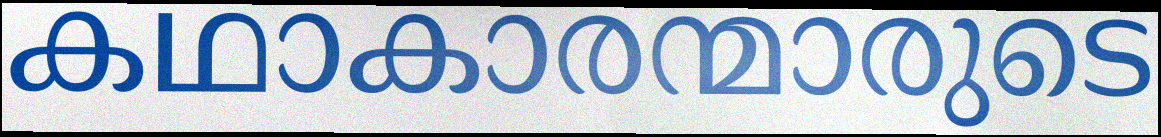
കഥാകാരന്മാരുടെ